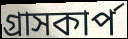
গ্রাসকার্প